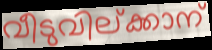
വീടുവില്ക്കാന്